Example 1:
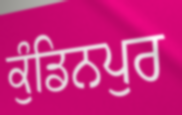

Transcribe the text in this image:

ਕੁੰਡਿਨਪੁਰ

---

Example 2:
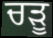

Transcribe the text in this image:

ਚੜੂ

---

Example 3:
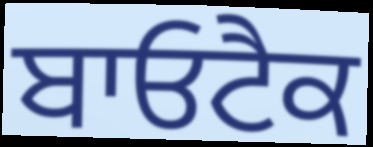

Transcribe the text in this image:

ਬਾਓਟੈਕ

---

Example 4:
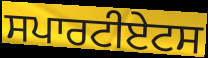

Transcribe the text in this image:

ਸਪਾਰਟੀਏਟਸ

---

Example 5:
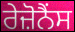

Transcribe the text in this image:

ਰੇਜ਼ੋਨੈਂਸ